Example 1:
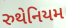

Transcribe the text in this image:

રુથેનિયમ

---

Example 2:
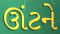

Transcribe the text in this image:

ઊંટને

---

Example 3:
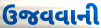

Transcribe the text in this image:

ઉજવવાની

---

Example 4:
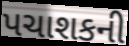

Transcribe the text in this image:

પચાશકની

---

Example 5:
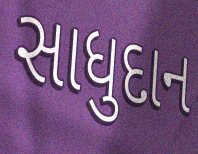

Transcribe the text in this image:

સાધુદાન